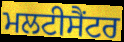
ਮਲਟੀਸੈਂਟਰ